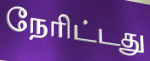
நேரிட்டது